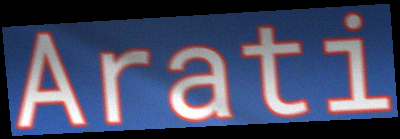
Arati